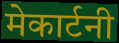
मेकार्टनी